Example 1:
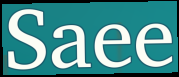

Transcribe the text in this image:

Saee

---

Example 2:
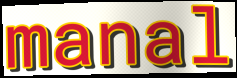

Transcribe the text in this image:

manal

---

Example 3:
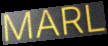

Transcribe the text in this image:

MARL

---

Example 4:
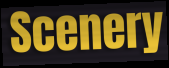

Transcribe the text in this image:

Scenery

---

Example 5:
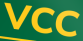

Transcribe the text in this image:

VCC